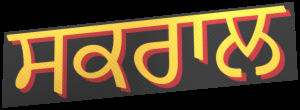
ਸਕਰਾਲ